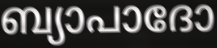
ബ്യാപാദോ